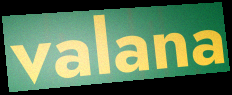
valana